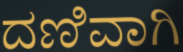
ದಣಿವಾಗಿ